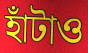
হাঁটাও